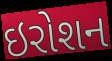
ઇરોશન